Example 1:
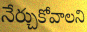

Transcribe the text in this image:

నేర్చుకోవాలని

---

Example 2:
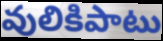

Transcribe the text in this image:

వులికిపాటు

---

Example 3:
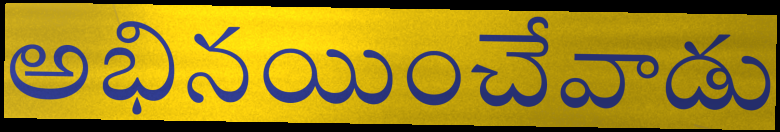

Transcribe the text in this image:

అభినయించేవాడు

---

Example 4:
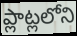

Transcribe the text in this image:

ప్లాట్లలోని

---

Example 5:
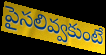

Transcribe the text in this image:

పైసలివ్వకుంటే